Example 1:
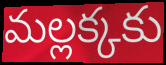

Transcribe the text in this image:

మల్లక్కకు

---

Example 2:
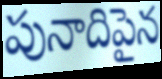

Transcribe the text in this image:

పునాదిపైన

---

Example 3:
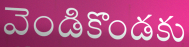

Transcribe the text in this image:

వెండికొండకు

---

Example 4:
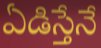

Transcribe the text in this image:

ఏడిస్తేనే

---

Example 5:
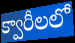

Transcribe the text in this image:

క్వారీలలో